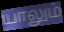
யாலும்